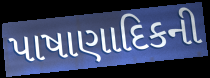
પાષાણાદિકની